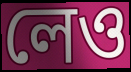
লেও